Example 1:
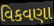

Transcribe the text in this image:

વિકવણા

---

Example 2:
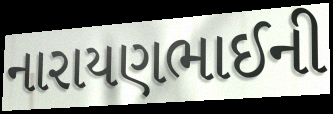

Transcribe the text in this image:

નારાયણભાઈની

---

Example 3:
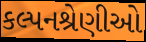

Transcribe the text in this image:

કલ્પનશ્રેણીઓ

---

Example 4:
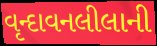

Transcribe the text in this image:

વૃન્દાવનલીલાની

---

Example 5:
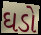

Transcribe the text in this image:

ઘડો